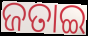
ଜତାଇ